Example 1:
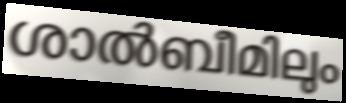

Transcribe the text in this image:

ശാൽബീമിലും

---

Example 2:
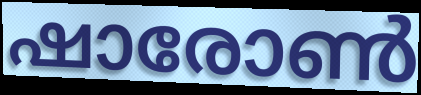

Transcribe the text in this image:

ഷാരോൺ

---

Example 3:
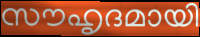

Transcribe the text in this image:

സൗഹൃദമായി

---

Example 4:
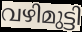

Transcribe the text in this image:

വഴിമുട്ടി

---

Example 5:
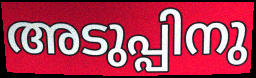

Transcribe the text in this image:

അടുപ്പിനു